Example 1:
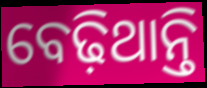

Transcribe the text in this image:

ବେଢ଼ିଥାନ୍ତି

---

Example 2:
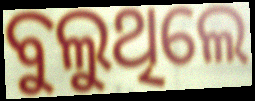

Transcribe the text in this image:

ବୁଲୁଥିଲେ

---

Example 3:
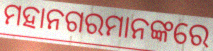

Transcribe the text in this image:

ମହାନଗରମାନଙ୍କରେ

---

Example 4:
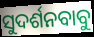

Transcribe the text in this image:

ସୁଦର୍ଶନବାବୁ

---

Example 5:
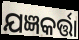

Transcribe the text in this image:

ଯଜ୍ଞକର୍ତ୍ତା